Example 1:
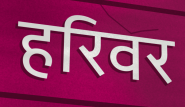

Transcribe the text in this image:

हरिवर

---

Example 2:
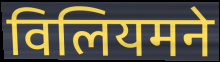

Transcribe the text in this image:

विलियमने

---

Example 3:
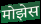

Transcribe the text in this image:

मोझेस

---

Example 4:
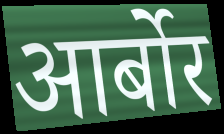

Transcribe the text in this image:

आर्बोर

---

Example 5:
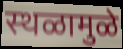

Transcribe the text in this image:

स्थळामुळे